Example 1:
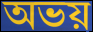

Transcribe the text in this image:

অভয়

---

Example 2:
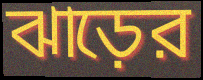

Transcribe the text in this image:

ঝাড়ের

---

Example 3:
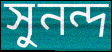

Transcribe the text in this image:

সুনন্দ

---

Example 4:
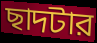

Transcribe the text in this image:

ছাদটার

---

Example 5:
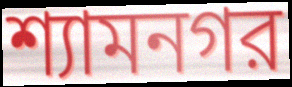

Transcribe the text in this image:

শ্যামনগর